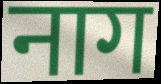
नाग